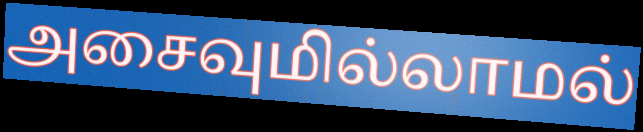
அசைவுமில்லாமல்